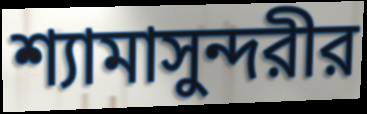
শ্যামাসুন্দরীর